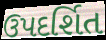
ઉપદર્શિત